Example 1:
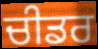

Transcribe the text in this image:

ਚੀਡਰ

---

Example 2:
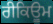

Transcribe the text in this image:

ਰੀਕਿਊਮ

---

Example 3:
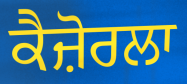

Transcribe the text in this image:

ਕੈਜ਼ੋਰਲਾ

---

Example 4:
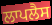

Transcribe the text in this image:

ਲਾਪਲੈਸ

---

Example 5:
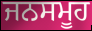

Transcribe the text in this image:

ਜਨਸਮੂਹ